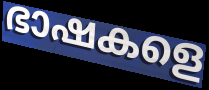
ഭാഷകളെ